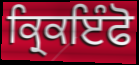
ਕ੍ਰਿਕਇੰਫੋ